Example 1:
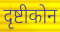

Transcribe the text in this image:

दृष्टीकोन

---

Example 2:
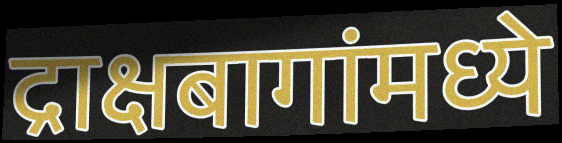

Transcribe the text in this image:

द्राक्षबागांमध्ये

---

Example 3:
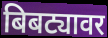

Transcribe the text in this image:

बिबट्यावर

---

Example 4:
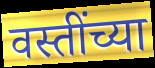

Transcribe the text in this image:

वस्तींच्या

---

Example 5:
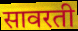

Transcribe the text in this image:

सावरती